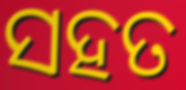
ସହତ